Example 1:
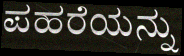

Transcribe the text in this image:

ಪಹರೆಯನ್ನು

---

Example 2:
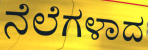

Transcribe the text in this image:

ನೆಲೆಗಳಾದ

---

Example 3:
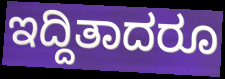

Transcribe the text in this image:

ಇದ್ದಿತಾದರೂ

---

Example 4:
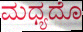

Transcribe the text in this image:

ಮಧ್ಯದೊ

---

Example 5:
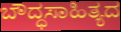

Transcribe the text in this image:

ಬೌದ್ಧಸಾಹಿತ್ಯದ